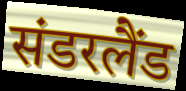
संडरलैंड